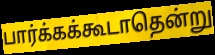
பார்க்கக்கூடாதென்று